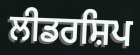
ਲੀਡਰਸ਼ਿਪ